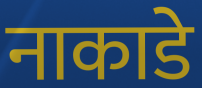
नाकाडे